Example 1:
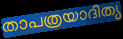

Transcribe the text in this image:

താപത്രയാദിത്യ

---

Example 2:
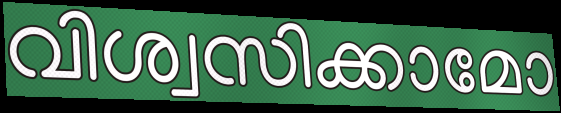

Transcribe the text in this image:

വിശ്വസിക്കാമോ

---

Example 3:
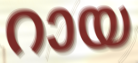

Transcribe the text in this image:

റായ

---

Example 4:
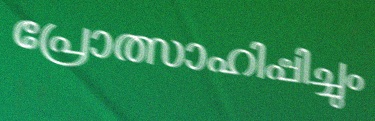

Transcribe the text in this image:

പ്രോത്സാഹിപ്പിച്ചും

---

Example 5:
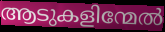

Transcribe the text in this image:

ആടുകളിന്മേൽ